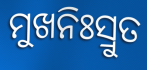
ମୁଖନିଃସ୍ରୁତ